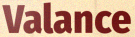
Valance